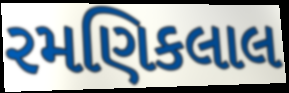
રમણિકલાલ